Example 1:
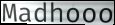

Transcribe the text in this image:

Madhooo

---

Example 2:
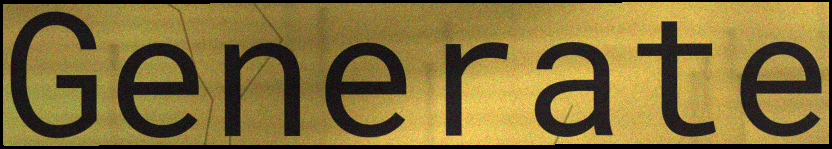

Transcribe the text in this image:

Generate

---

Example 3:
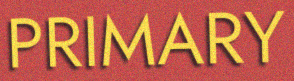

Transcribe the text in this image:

PRIMARY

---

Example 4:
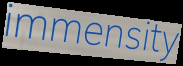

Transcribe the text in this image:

immensity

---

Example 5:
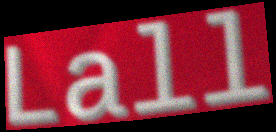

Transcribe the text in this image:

Lall